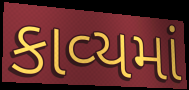
કાવ્‍યમાં